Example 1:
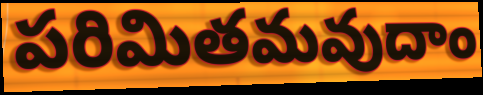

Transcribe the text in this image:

పరిమితమవుదాం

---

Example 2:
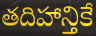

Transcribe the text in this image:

తదిహాన్తికే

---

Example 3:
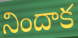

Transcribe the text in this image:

నిందాక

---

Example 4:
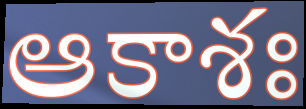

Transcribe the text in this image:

ఆకాశః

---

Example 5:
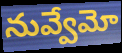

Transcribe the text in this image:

నువ్వేమో